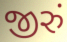
જીરું